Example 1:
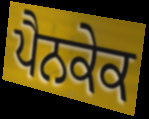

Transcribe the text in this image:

ਪੈਨਕੇਕ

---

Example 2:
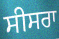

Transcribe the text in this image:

ਸੀਸਰਾ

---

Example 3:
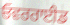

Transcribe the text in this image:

ਓਵਰਰਾਈਡ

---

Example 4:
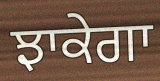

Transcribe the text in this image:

ਝਾਕੇਗਾ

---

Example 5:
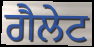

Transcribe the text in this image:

ਗੈਲੇਟ